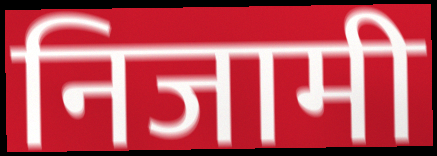
निजामी